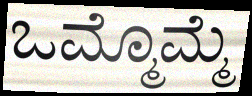
ಒಮ್ಮೊಮ್ಮೆ